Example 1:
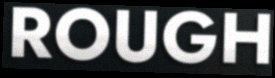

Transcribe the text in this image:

ROUGH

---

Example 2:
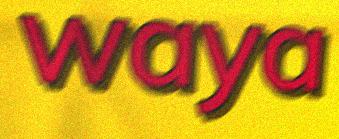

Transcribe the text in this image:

waya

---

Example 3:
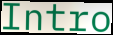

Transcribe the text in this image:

Intro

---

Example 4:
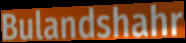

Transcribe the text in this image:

Bulandshahr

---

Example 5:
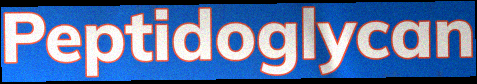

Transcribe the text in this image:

Peptidoglycan